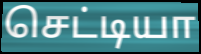
செட்டியா